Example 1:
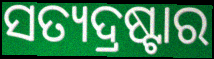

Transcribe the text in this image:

ସତ୍ୟଦ୍ରଷ୍ଟାର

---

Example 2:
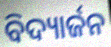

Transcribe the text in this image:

ବିଦ୍ୟାର୍ଜନ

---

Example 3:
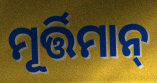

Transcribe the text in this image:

ମୂର୍ତ୍ତିମାନ୍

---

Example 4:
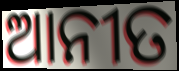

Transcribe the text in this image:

ଆନୀତ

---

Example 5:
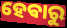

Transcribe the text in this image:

ହେଵାରୁ